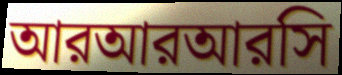
আরআরআরসি